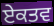
ਏਕਤਵ